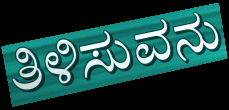
ತಿಳಿಸುವನು